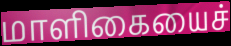
மாளிகையைச்